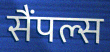
सैंपल्‍स